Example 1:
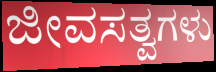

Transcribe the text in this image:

ಜೀವಸತ್ವಗಳು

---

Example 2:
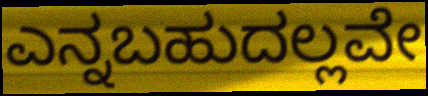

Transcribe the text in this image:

ಎನ್ನಬಹುದಲ್ಲವೇ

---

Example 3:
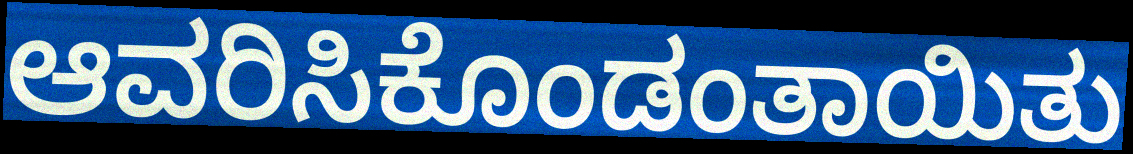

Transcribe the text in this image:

ಆವರಿಸಿಕೊಂಡಂತಾಯಿತು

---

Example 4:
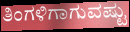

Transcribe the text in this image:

ತಿಂಗಳಿಗಾಗುವಷ್ಟು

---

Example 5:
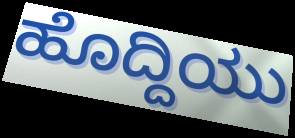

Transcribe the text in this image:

ಹೊದ್ದಿಯು